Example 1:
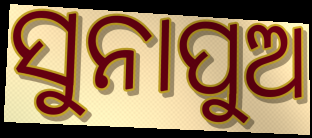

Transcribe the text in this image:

ସୁନାପୁଅ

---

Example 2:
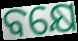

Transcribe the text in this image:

ବକ୍ଷେ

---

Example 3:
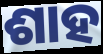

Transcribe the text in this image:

ଶାହ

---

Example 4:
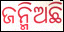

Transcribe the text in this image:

ଜନ୍ମିଅଛି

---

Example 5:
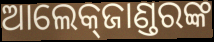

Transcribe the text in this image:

ଆଲେକ୍‍ଜାଣ୍ଡରଙ୍କ